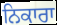
ਨਿਕਾਰਾ